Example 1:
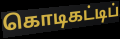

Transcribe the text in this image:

கொடிகட்டிப்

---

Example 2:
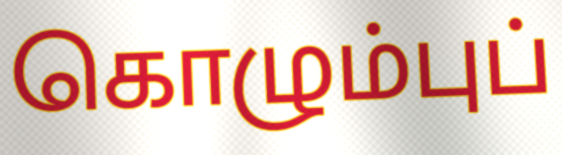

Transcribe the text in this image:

கொழும்புப்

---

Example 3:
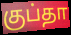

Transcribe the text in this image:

குப்தா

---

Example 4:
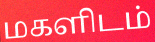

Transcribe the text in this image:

மகளிடம்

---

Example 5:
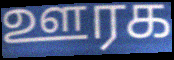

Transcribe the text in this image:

ஊரக